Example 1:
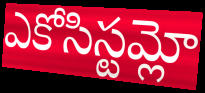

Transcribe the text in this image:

ఎకోసిస్టమ్లో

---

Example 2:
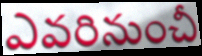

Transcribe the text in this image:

ఎవరినుంచీ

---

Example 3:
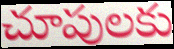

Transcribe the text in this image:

చూపులకు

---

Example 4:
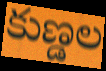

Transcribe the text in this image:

కుణ్డల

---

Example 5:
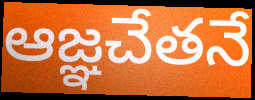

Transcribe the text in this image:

ఆజ్ఞచేతనే